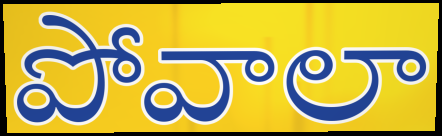
పోవాలా